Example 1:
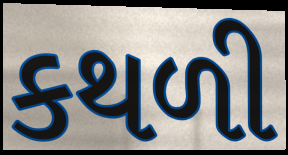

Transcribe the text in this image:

કથળી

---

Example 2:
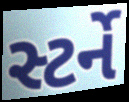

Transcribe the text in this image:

સ્ટર્ને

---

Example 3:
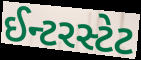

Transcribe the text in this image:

ઈન્ટરસ્ટેટ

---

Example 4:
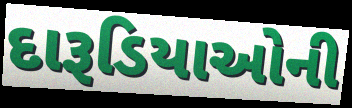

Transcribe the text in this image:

દારૂડિયાઓની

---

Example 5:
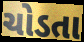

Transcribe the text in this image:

ચોડતા